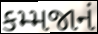
કમ્મજાનં